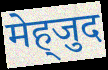
मेह्जुद